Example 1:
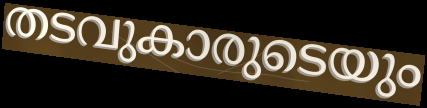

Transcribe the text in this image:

തടവുകാരുടെയും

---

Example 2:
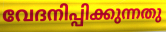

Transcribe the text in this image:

വേദനിപ്പിക്കുന്നതു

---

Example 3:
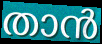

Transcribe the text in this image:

താൻ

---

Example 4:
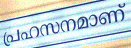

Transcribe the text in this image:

പ്രഹസനമാണ്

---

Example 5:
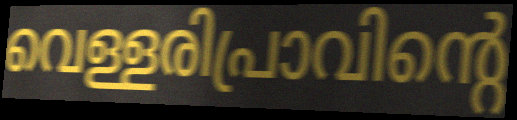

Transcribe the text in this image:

വെള്ളരിപ്രാവിന്റെ